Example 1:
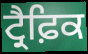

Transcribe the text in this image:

ਟ੍ਰੈਫ਼ਿਕ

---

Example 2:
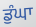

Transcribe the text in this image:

ਡੁੰਘਾ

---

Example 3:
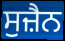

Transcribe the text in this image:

ਸੁਜ਼ੈਨ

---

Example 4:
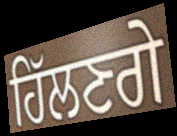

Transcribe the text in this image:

ਹਿੱਲਣਗੇ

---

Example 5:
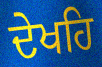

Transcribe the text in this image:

ਦੇਖਹਿ